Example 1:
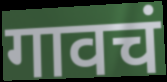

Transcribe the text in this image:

गावचं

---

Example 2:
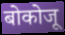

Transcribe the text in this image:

बोकोजू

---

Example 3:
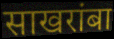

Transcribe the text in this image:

साखरांबा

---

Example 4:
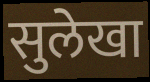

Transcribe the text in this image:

सुलेखा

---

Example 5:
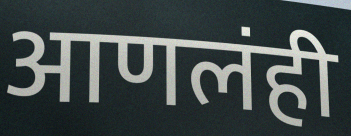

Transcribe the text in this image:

आणलंही